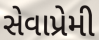
સેવાપ્રેમી